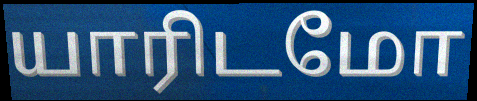
யாரிடமோ